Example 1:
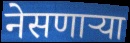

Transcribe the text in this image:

नेसणाऱ्या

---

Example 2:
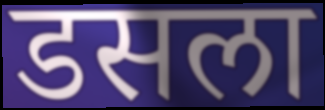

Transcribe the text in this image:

डसला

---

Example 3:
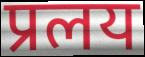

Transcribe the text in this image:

प्रलय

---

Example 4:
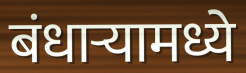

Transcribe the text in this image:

बंधाऱ्यामध्ये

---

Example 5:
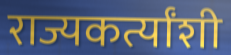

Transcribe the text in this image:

राज्यकर्त्यांशी